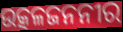
ଉତ୍କଳଜନନୀର